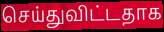
செய்துவிட்டதாக